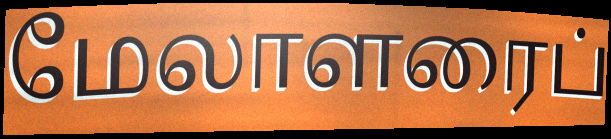
மேலாளரைப்